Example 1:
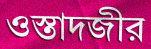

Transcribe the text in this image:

ওস্তাদজীর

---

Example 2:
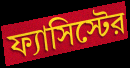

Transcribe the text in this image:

ফ্যাসিস্টের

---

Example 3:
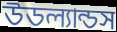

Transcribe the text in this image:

উডল্যান্ডস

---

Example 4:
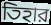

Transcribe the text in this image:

তিহার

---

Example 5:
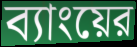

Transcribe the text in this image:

ব্যাংয়ের